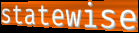
statewise